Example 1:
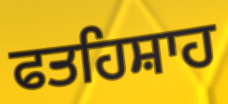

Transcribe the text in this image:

ਫਤਹਿਸ਼ਾਹ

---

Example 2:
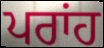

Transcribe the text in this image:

ਪਰਾਂਹ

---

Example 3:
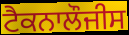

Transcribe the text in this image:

ਟੈਕਨਾਲੌਜੀਸ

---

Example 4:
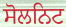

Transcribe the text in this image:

ਸੋਲਨਿਟ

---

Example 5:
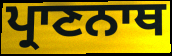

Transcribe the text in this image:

ਪ੍ਰਾਣਨਾਥ